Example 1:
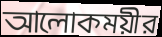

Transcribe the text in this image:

আলোকময়ীর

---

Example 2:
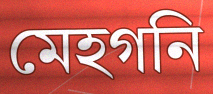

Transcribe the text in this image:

মেহগনি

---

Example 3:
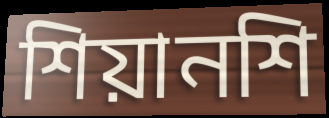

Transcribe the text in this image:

শিয়ানশি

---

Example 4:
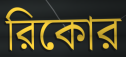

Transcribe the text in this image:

রিকোর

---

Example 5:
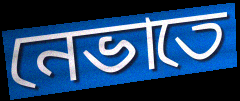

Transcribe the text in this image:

নেভাতে